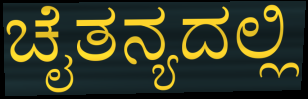
ಚೈತನ್ಯದಲ್ಲಿ